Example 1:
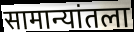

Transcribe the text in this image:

सामान्यांतला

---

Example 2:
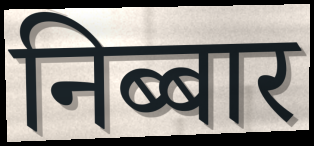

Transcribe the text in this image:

निब्बार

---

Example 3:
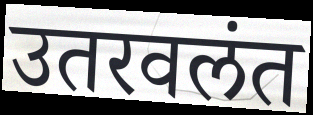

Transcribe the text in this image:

उतरवलंत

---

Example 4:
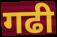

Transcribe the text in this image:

गढी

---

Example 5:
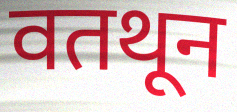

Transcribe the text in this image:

वतथून